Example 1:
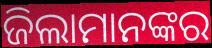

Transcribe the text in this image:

ଜିଲାମାନଙ୍କର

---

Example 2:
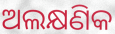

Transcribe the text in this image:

ଅଲକ୍ଷଣିକ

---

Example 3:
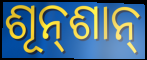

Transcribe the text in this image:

ଶୂନ୍‌ଶାନ୍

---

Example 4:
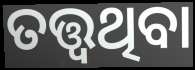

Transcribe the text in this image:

ତତ୍ତ୍ୱଥିବା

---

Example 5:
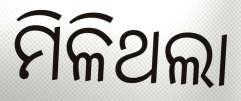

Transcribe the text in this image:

ମିଳିଥଲା